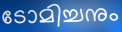
ടോമിച്ചനും